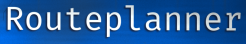
Routeplanner